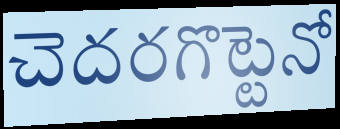
చెదరగొట్టెనో